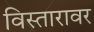
विस्तारावर